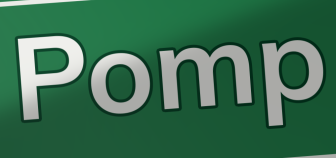
Pomp